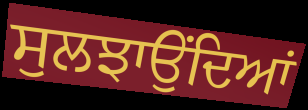
ਸੁਲਝਾਉਂਦਿਆਂ